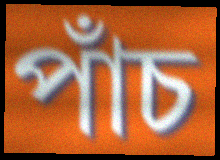
পাঁচ